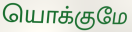
யொக்குமே